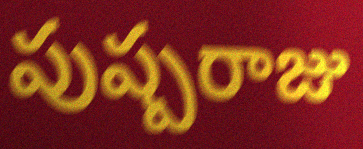
పుష్పరాజు